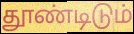
தூண்டிடும்